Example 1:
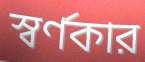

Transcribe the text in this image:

স্বর্ণকার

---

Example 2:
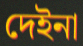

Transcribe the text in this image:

দেইনা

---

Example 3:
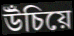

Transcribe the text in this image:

উঁচিয়ে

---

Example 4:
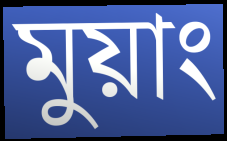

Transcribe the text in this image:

মুয়াং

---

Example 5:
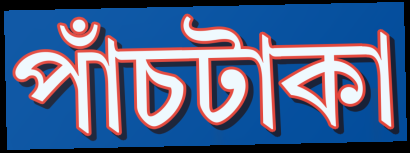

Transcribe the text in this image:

পাঁচটাকা